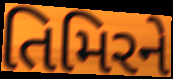
તિમિરને